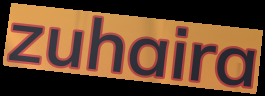
zuhaira